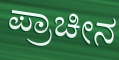
ಪ್ರಾಚೀನ